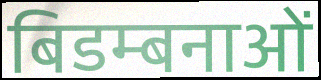
बिडम्बनाओं